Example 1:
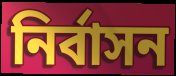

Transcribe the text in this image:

নিৰ্বাসন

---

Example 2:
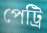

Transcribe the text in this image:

পেট্ৰি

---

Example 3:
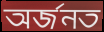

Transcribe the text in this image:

অৰ্জনত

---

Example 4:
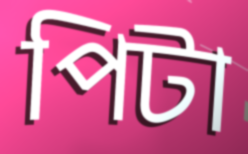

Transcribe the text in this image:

পিটা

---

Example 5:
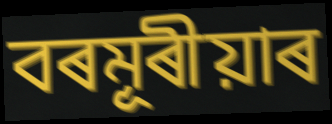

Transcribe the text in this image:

বৰমূৰীয়াৰ